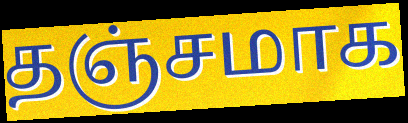
தஞ்சமாக